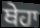
ਥੇਹਾ